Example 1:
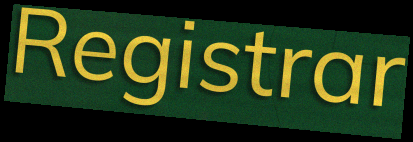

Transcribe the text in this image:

Registrar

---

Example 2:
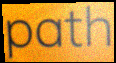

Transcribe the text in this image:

path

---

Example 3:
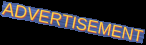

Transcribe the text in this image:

ADVERTISEMENT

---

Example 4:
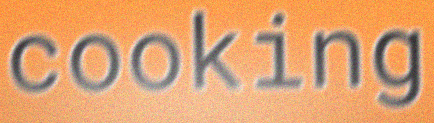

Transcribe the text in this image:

cooking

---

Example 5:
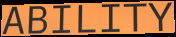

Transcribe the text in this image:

ABILITY